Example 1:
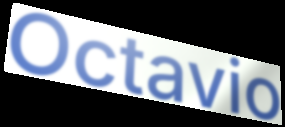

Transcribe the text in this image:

Octavio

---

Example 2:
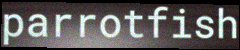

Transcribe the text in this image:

parrotfish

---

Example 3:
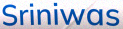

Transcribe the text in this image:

Sriniwas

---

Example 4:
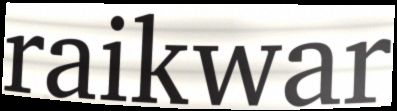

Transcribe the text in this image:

raikwar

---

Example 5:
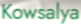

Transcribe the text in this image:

Kowsalya